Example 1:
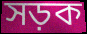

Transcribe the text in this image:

সড়ক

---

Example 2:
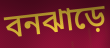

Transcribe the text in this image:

বনঝাড়ে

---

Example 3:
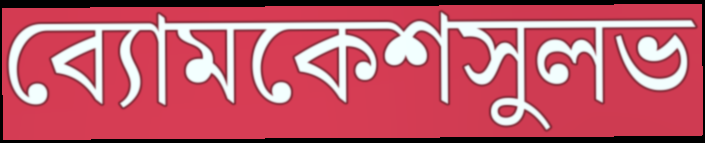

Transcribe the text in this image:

ব্যোমকেশসুলভ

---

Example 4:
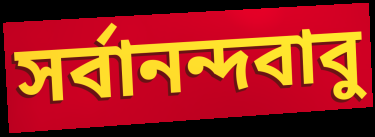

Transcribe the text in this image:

সর্বানন্দবাবু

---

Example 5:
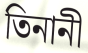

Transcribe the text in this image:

তিনানী